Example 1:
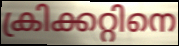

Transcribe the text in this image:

ക്രിക്കറ്റിനെ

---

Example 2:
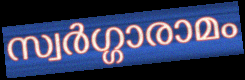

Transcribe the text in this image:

സ്വർഗ്ഗാരാമം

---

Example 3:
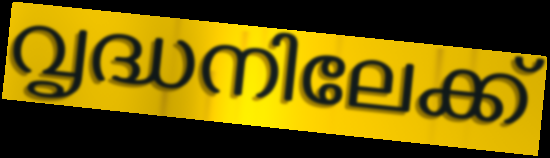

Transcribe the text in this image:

വൃദ്ധനിലേക്ക്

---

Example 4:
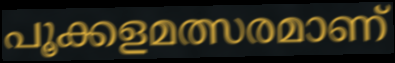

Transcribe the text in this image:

പൂക്കളമത്സരമാണ്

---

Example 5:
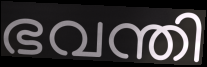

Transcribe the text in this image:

ഭവന്തി